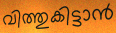
വിത്തുകിട്ടാൻ